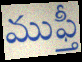
ముఫ్తీ